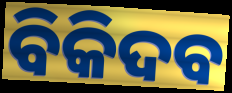
ବିକିଦବ